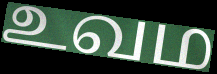
உவம